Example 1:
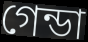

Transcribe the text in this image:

গেন্ডা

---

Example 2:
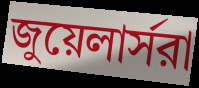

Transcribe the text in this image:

জুয়েলার্সরা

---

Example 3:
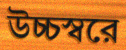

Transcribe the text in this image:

উচ্চস্বরে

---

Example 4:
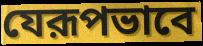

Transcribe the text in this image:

যেরূপভাবে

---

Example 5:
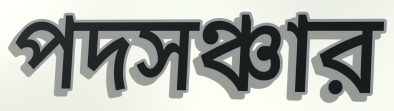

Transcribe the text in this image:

পদসঞ্চার